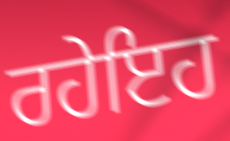
ਰਹੇਇਹ